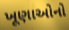
ખૂણાઓનો